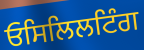
ਓਸਿਲਿਲਟਿੰਗ